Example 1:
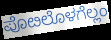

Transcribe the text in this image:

ಪೊೞಲೊಳಗೆಲ್ಲಂ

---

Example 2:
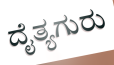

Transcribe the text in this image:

ದೈತ್ಯಗುರು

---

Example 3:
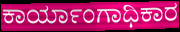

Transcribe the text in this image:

ಕಾರ್ಯಾಂಗಾಧಿಕಾರ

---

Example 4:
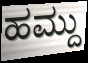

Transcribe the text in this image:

ಹಮ್ದು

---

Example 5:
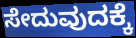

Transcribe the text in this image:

ಸೇದುವುದಕ್ಕೆ